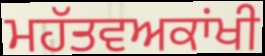
ਮਹੱਤਵਅਕਾਂਖੀ